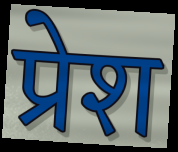
प्रेश